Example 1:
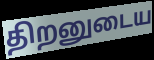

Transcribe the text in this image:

திறனுடைய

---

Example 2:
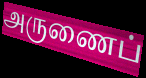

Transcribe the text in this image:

அருணைப்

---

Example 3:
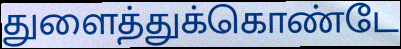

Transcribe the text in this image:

துளைத்துக்கொண்டே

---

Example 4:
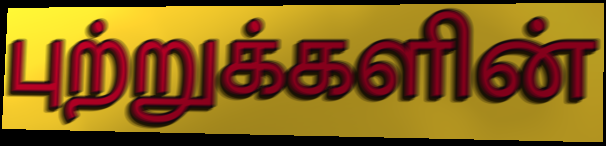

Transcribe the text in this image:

புற்றுக்களின்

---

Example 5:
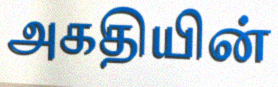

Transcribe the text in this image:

அகதியின்